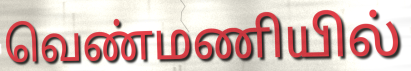
வெண்மணியில்